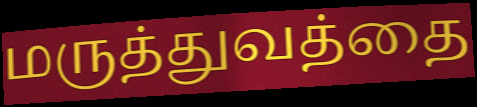
மருத்துவத்தை